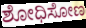
ಶೋಧಿಸೋಣ